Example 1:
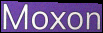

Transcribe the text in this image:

Moxon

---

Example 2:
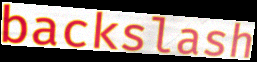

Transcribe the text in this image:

backslash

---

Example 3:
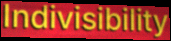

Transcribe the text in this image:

Indivisibility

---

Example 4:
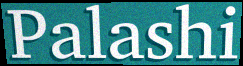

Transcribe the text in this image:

Palashi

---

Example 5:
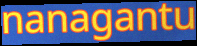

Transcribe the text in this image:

nanagantu